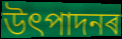
উৎপাদনৰ